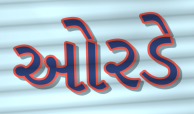
ઓરડે